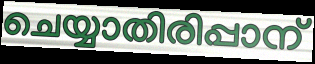
ചെയ്യാതിരിപ്പാന്